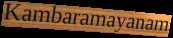
Kambaramayanam